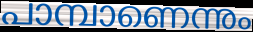
പാമ്പാണെന്നും